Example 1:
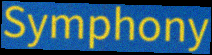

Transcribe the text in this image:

Symphony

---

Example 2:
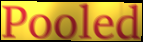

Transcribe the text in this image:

Pooled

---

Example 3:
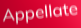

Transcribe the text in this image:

Appellate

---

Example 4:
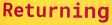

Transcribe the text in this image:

Returning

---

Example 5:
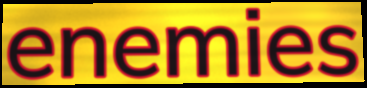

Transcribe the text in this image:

enemies